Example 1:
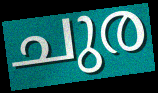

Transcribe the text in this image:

ചുര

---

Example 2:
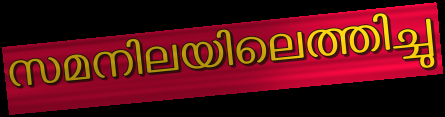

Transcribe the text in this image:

സമനിലയിലെത്തിച്ചു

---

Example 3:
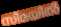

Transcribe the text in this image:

സീമയിൽ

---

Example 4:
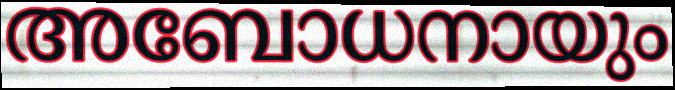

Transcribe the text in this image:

അബോധനായും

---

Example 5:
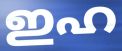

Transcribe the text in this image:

ഇഹ